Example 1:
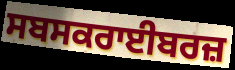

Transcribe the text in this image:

ਸਬਸਕਰਾਈਬਰਜ਼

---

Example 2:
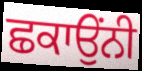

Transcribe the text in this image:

ਛਕਾਉਂਨੀ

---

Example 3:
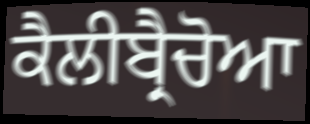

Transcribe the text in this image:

ਕੈਲੀਬ੍ਰੈਚੋਆ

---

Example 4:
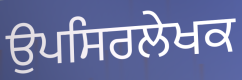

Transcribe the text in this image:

ਉਪਸਿਰਲੇਖਕ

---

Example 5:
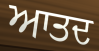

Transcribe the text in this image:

ਆਤਦ